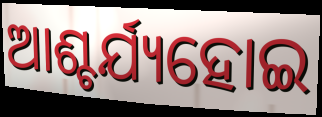
ଆଶ୍ଚର୍ଯ୍ୟହୋଇ